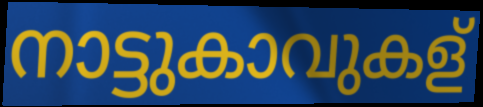
നാട്ടുകാവുകള്